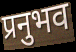
प्रनुभव